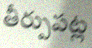
తీర్పుపట్ల